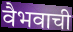
वैभवाची